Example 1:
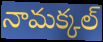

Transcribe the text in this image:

నామక్కల్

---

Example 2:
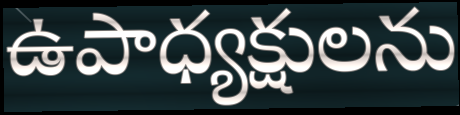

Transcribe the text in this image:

ఉపాధ్యక్షులను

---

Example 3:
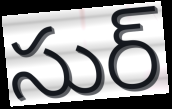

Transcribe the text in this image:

సుర్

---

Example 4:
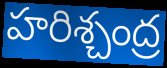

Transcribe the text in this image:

హరిశ్చంద్ర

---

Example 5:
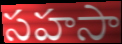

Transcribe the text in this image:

సహసా